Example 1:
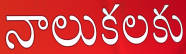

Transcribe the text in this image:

నాలుకలకు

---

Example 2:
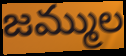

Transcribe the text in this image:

జమ్ముల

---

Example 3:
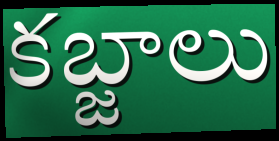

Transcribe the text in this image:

కబ్జాలు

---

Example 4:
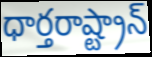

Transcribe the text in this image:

ధార్తరాష్ట్రాన్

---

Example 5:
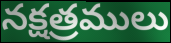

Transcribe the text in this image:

నక్షత్రములు